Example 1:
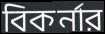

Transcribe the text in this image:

বিকর্নার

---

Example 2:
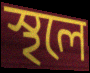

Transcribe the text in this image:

স্থলে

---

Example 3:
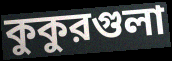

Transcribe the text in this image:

কুকুরগুলা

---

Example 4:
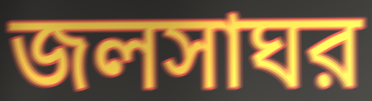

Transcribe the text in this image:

জলসাঘর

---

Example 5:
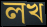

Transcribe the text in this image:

লখ